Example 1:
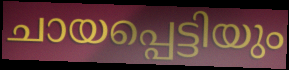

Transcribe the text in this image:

ചായപ്പെട്ടിയും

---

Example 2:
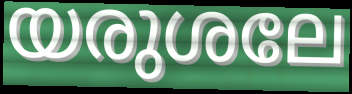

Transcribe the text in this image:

യരുശലേ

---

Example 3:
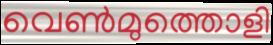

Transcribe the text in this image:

വെൺമുത്തൊളി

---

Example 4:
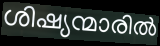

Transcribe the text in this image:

ശിഷ്യന്മാരിൽ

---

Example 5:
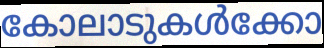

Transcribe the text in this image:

കോലാടുകൾക്കോ